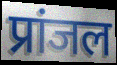
प्रांजल